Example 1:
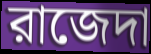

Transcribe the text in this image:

রাজেদা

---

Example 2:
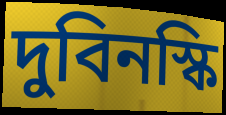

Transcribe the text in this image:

দুবিনস্কি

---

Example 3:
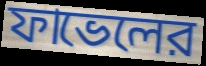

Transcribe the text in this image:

ফাভেলের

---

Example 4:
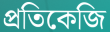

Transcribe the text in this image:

প্রতিকেজি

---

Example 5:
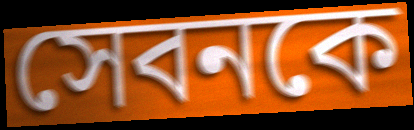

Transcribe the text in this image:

সেবনকে